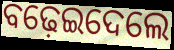
ବଢ଼େଇଦେଲେ